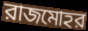
রাজমোহর